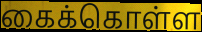
கைக்கொள்ள